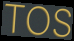
TOS